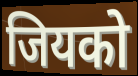
जियको